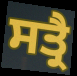
ਸਤ੍ਰੈ